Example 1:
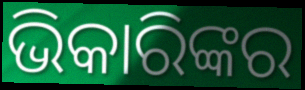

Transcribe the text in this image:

ଭିକାରିଙ୍କର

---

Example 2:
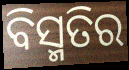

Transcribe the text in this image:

ବିସ୍ମତିର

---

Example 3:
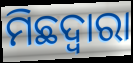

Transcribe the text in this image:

ମିଛଦ୍ଵାରା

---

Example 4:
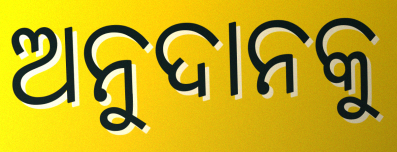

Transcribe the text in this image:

ଅନୁଦାନକୁ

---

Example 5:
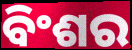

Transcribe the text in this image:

ବିଂଶର